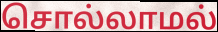
சொல்லாமல்